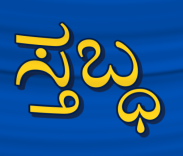
ಸ್ತಬ್ಧ